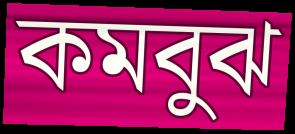
কমবুঝ